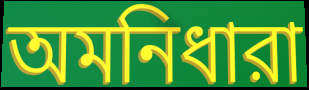
অমনিধারা